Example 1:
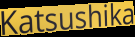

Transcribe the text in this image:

Katsushika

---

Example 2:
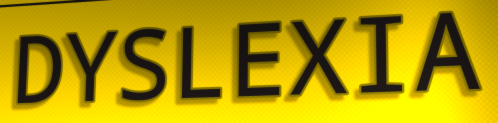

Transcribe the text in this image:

DYSLEXIA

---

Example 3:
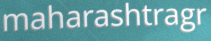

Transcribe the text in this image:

maharashtragr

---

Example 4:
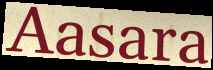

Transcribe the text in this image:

Aasara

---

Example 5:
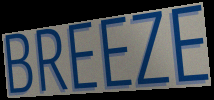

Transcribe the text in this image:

BREEZE